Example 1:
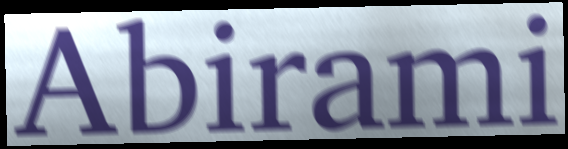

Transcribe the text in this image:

Abirami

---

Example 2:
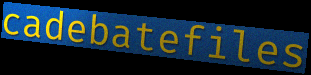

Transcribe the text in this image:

cadebatefiles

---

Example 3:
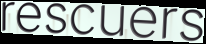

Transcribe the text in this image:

rescuers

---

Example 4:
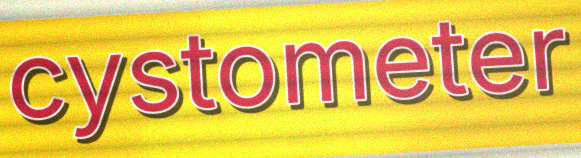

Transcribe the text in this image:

cystometer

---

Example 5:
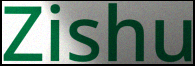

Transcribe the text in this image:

Zishu